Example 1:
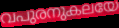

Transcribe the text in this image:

വപുരനുകലയേ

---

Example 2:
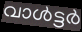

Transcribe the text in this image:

വാൾട്ടർ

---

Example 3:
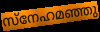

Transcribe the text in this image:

സ്നേഹമഞ്ഞു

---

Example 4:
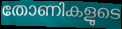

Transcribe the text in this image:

തോണികളുടെ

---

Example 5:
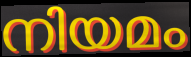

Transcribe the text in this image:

നിയമം